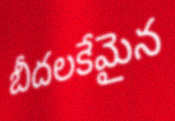
బీదలకేమైన